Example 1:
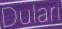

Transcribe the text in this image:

Dulari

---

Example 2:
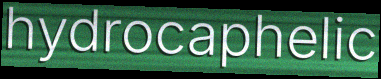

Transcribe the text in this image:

hydrocaphelic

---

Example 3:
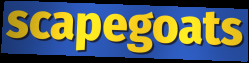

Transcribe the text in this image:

scapegoats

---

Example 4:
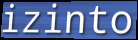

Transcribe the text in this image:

izinto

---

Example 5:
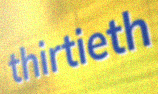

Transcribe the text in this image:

thirtieth